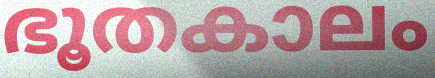
ഭൂതകാലം